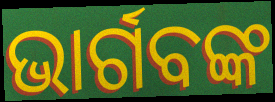
ଭାର୍ଗବଙ୍କ